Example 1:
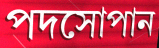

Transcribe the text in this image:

পদসোপান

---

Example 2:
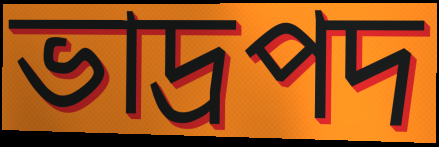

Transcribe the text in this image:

ভাদ্রপদ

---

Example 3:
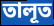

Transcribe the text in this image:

তালূত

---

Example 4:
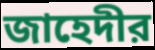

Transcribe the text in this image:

জাহেদীর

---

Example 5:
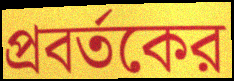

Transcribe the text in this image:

প্রবর্তকের